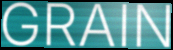
GRAIN